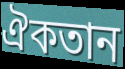
ঐকতান